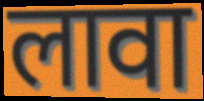
लावा